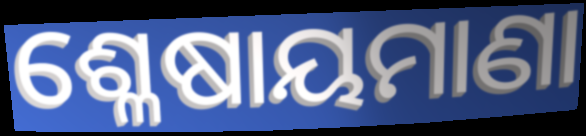
ଶ୍ଳେଷାୟମାଣା